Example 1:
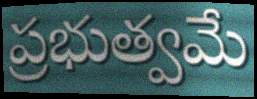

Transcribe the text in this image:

ప్రభుత్వమే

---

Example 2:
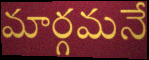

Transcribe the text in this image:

మార్గమనే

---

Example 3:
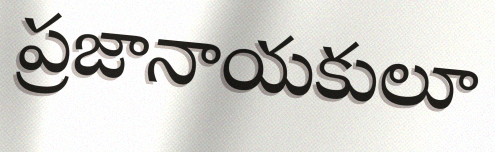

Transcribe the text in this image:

ప్రజానాయకులూ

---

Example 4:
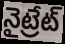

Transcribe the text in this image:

నైట్రేట్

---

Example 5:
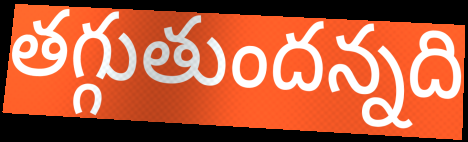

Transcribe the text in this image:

తగ్గుతుందన్నది